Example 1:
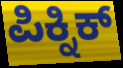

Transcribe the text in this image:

ಪಿಕ್ನಿಕ್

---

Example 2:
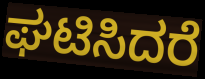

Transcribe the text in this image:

ಘಟಿಸಿದರೆ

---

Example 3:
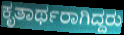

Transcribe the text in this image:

ಕೃತಾರ್ಥರಾಗಿದ್ದರು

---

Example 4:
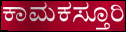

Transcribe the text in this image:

ಕಾಮಕಸ್ತೂರಿ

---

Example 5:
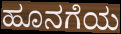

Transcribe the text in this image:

ಹೂನಗೆಯ